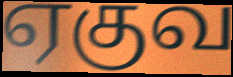
ஏகுவ